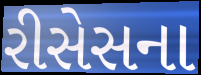
રીસેસના